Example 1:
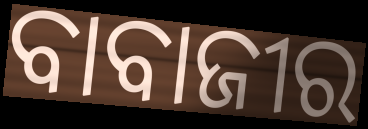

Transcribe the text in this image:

ବାବାଜୀର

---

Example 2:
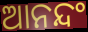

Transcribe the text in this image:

ଆନନ୍ଦଂ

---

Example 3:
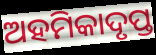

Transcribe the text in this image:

ଅହମିକାଦୃପ୍ତ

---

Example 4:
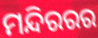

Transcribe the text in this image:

ମନ୍ଦିରରର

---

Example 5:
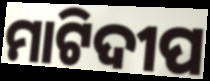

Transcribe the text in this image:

ମାଟିଦୀପ